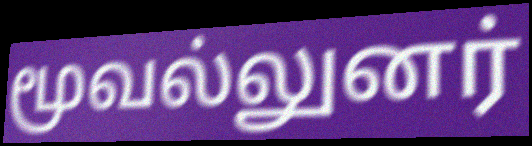
மூவல்லுனர்